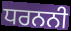
ਧਰਨਨੀ